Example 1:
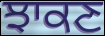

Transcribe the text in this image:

ਝਾਕਣ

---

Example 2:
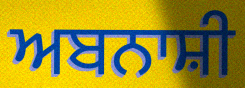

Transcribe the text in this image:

ਅਬਨਾਸ਼ੀ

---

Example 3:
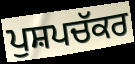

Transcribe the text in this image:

ਪੁਸ਼ਪਚੱਕਰ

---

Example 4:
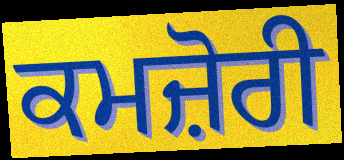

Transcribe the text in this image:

ਕਮਜ਼ੋਰੀ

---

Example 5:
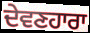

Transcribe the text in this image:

ਦੇਵਣਹਾਰਾ